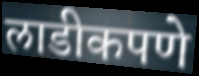
लाडीकपणे